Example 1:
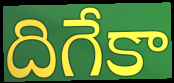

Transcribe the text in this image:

దిగేకా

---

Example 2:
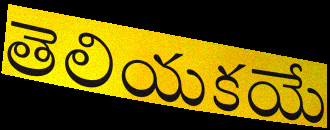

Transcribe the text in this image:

తెలియకయే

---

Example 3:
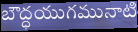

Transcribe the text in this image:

బౌద్ధయుగమునాటి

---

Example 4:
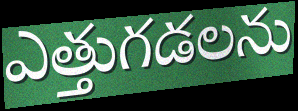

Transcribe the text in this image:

ఎత్తుగడలను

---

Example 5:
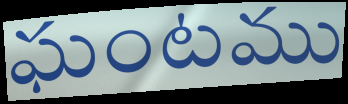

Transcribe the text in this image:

ఘంటము